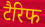
टैरिफ